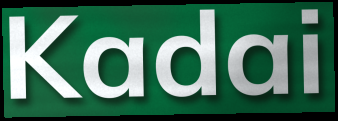
Kadai